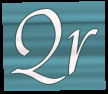
Qr